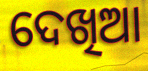
ଦେଖିଆ